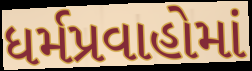
ધર્મપ્રવાહોમાં